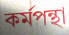
কৰ্মপন্থা